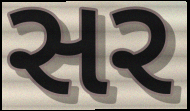
સર